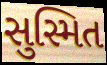
સુસ્મિત